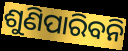
ଶୁଣିପାରିବନି